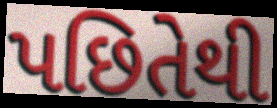
પછિતેથી